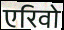
एरिवो